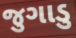
જુગાડુ